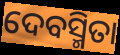
ଦେବସ୍ମିତା